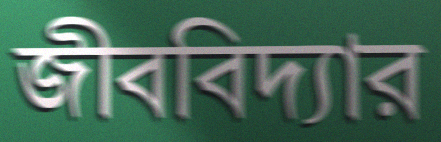
জীববিদ্যার